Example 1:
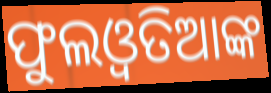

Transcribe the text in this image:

ଫୁଲଓ୍ୱତିଆଙ୍କ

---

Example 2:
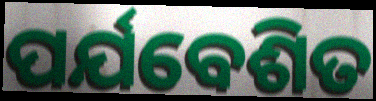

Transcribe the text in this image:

ପର୍ଯବେଶିତ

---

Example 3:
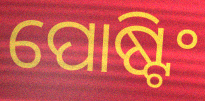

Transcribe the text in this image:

ପୋଷ୍ଟିଂ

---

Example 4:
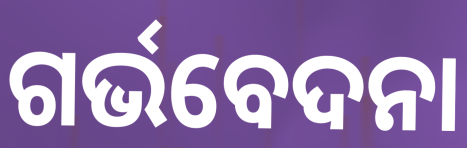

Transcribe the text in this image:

ଗର୍ଭବେଦନା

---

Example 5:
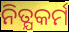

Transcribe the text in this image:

ନିତ୍ଯକର୍ମ